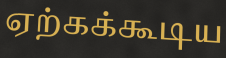
ஏற்கக்கூடிய